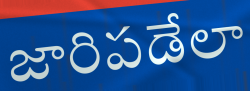
జారిపడేలా